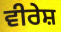
ਵੀਰੇਸ਼